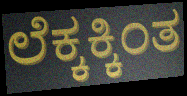
ಲೆಕ್ಕಕ್ಕಿಂತ